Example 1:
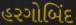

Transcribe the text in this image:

હરગોબિંદ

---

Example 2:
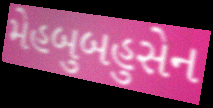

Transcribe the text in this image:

મેહબુબહુસેન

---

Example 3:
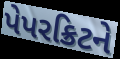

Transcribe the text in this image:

પેપરક્રિટને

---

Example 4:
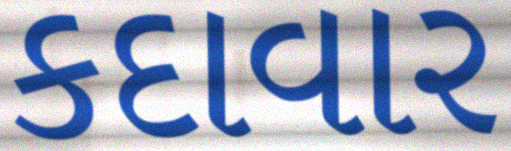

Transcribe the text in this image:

કદાવાર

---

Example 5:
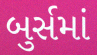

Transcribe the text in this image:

બુર્સમાં